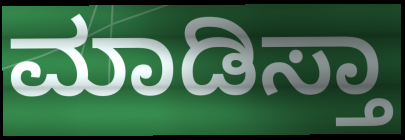
ಮಾಡಿಸ್ತಾ